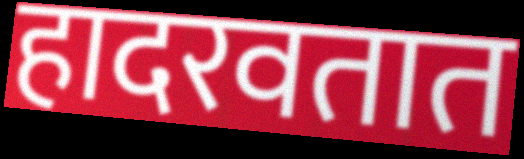
हादरवतात